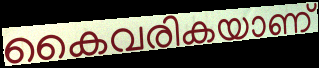
കൈവരികയാണ്